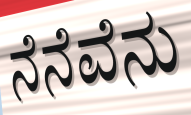
ನೆನೆವೆನು